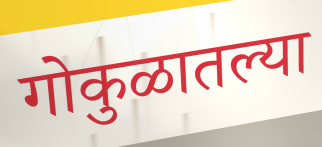
गोकुळातल्या